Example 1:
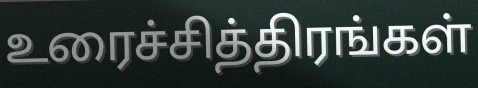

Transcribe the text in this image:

உரைச்சித்திரங்கள்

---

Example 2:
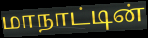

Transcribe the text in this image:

மாநாட்டின்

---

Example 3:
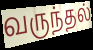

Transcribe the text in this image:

வருந்தல்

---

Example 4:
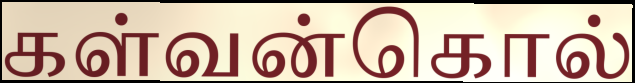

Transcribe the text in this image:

கள்வன்கொல்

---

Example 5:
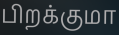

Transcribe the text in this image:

பிறக்குமா